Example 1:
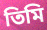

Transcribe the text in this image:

তিমি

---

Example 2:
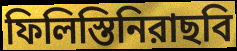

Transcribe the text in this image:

ফিলিস্তিনিরাছবি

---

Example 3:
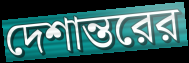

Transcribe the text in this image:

দেশান্তরের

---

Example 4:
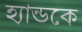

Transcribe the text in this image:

হ্যান্ডকে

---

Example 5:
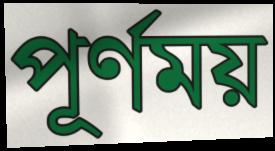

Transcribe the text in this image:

পূর্ণময়